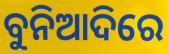
ବୁନିଆଦିରେ